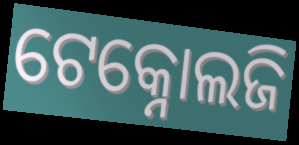
ଟେକ୍ନୋଲଜି